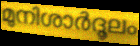
മുനിശാർദൂലം